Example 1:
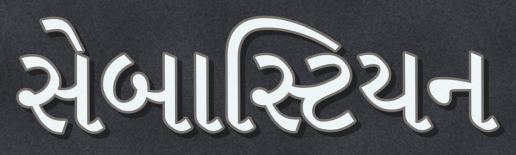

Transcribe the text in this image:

સેબાસ્ટિયન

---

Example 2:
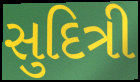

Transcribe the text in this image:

સુદિત્રી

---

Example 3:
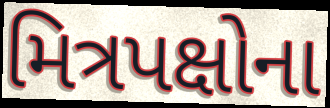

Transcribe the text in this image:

મિત્રપક્ષોના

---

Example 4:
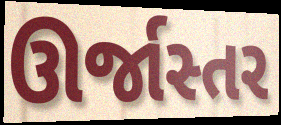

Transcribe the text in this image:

ઊર્જાસ્તર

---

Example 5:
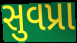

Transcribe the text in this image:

સુવપ્રા